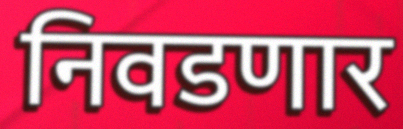
निवडणार